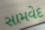
સામવેદ